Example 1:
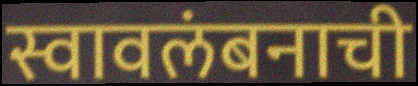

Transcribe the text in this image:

स्वावलंबनाची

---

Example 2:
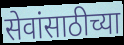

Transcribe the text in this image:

सेवांसाठीच्या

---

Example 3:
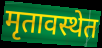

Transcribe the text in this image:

मृतावस्थेत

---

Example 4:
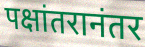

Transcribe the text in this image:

पक्षांतरानंतर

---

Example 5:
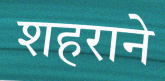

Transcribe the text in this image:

शहराने